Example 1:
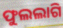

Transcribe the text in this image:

ଫୁଲଲାଗି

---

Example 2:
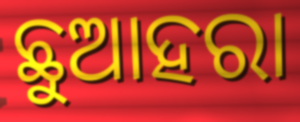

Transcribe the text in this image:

ଛୁଆହରା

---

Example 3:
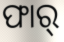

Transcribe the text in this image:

ଫାର୍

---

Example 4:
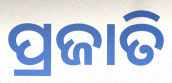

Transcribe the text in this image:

ପ୍ରଜାତି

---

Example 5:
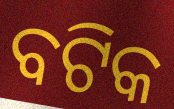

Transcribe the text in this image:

ବଟିକ